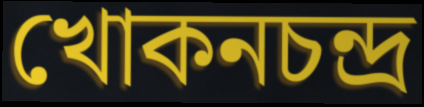
খোকনচন্দ্র